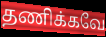
தணிக்கவே